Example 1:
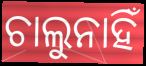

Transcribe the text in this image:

ଚାଲୁନାହିଁ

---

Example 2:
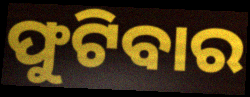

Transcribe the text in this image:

ଫୁଟିବାର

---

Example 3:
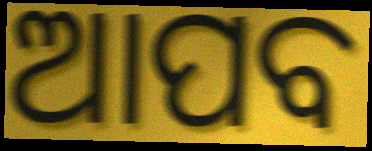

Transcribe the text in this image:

ଆପବ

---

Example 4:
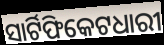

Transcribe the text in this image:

ସାର୍ଟିଫିକେଟଧାରୀ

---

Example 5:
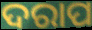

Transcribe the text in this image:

ଦରାପ